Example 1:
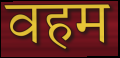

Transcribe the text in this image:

वहम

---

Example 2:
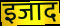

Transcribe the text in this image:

इजाद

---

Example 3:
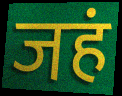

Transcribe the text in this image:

जहं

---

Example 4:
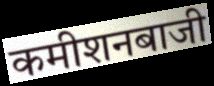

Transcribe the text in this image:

कमीशनबाजी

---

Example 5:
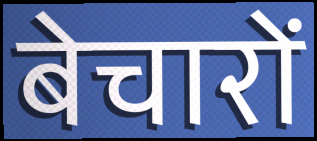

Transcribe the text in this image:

बेचारों